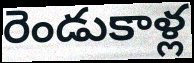
రెండుకాళ్ల